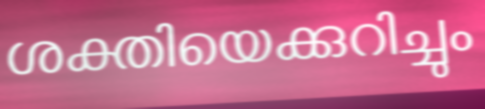
ശക്തിയെക്കുറിച്ചും